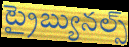
ట్రైబ్యునల్స్